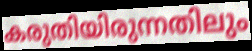
കരുതിയിരുന്നതിലും